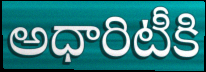
అధారిటీకి